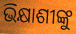
ଭିକ୍ଷାଶୀଙ୍କୁ